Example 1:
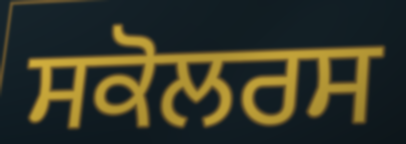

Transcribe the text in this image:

ਸਕੋਲਰਸ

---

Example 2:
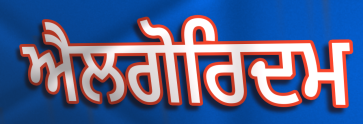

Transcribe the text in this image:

ਐਲਗੋਰਿਦਮ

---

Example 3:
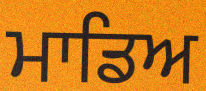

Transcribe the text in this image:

ਮਾਡਿਅ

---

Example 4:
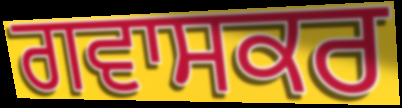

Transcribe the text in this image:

ਗਵਾਸਕਰ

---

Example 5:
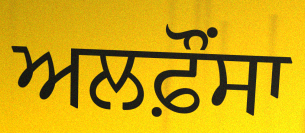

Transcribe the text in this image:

ਅਲਫ਼ੌਂਸਾ